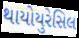
થાયોયુરેસિલ